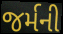
જર્મની